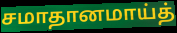
சமாதானமாய்த்